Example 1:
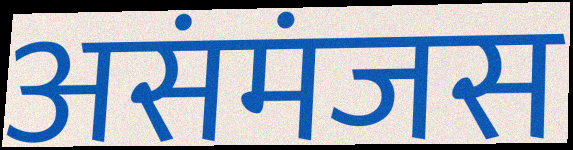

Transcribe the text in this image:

असंमंजस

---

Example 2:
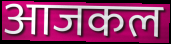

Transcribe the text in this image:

आजकल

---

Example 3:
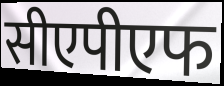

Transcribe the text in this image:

सीएपीएफ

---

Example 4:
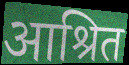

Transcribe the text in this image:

आश्रित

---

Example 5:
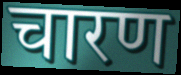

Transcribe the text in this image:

चारण